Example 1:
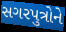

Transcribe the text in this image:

સગરપુત્રોને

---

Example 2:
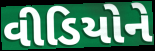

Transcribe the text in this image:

વીડિયોને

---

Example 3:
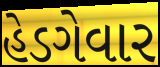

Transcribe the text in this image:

હેડગેવાર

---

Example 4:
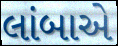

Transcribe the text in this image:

લાંબાએ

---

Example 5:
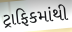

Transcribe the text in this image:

ટ્રાફિકમાંથી